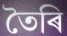
তৈৰি